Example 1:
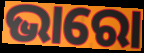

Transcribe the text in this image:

ଭାରୋ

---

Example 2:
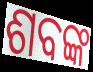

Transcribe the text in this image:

ଶବଙ୍କ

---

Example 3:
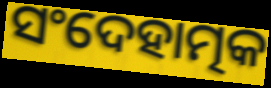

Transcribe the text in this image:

ସଂଦେହାତ୍ମକ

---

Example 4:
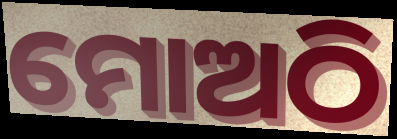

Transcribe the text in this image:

ମୋଅଠି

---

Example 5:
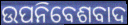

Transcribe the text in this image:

ଉପନିବେଶବାଦ